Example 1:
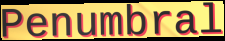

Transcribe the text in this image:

Penumbral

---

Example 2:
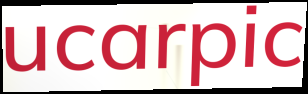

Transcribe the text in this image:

ucarpic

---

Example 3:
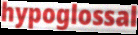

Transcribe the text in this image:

hypoglossal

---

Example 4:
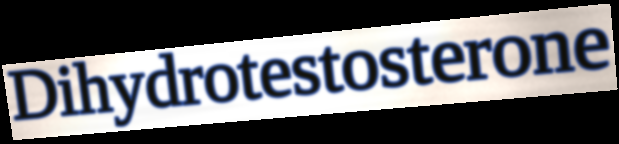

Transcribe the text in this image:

Dihydrotestosterone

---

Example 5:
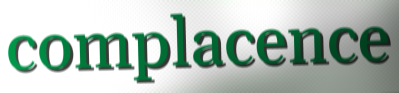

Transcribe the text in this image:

complacence